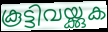
കൂട്ടിവയ്ക്കുക